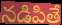
నడిపితే